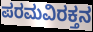
ಪರಮವಿರಕ್ತನ